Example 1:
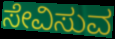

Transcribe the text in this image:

ಸೇವಿಸುವ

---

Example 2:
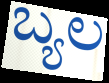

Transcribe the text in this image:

ಬ್ಯಲ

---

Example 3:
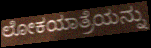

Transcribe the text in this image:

ಲೋಕಯಾತ್ರೆಯನ್ನು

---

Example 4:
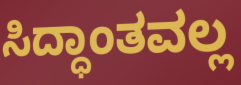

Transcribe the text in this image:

ಸಿದ್ಧಾಂತವಲ್ಲ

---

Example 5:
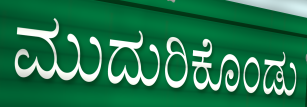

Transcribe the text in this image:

ಮುದುರಿಕೊಂಡು